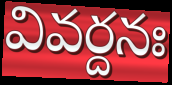
వివర్దనః